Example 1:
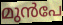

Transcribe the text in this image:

മുൻപേ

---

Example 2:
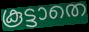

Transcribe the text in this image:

കൂട്ടാതെ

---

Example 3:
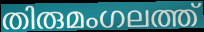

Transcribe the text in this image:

തിരുമംഗലത്ത്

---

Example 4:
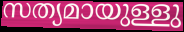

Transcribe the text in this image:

സത്യമായുള്ളു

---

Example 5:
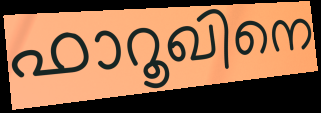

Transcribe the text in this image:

ഫാറൂഖിനെ